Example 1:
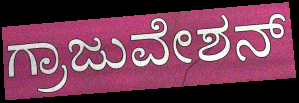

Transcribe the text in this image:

ಗ್ರಾಜುವೇಶನ್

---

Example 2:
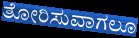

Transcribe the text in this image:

ತೋರಿಸುವಾಗಲೂ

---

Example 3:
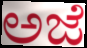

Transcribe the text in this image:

ಅಜೆ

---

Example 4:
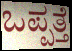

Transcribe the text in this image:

ಒಪ್ಪತ್ತೆ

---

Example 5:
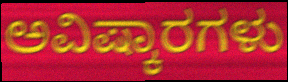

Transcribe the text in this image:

ಅವಿಷ್ಕಾರಗಳು